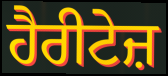
ਹੈਰੀਟੇਜ਼